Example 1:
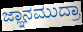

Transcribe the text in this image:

ಜ್ಞಾನಮುದ್ರಾ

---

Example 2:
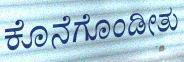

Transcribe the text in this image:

ಕೊನೆಗೊಂಡೀತು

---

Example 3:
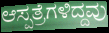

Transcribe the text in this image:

ಆಸ್ಪತ್ರೆಗಳಿದ್ದವು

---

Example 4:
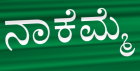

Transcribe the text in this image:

ನಾಕೆಮ್ಮೆ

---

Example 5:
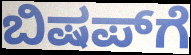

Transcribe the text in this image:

ಬಿಷಪ್‌ಗೆ